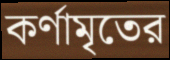
কর্ণামৃতের